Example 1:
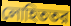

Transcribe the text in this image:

লোহিততর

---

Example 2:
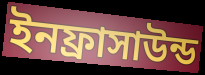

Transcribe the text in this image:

ইনফ্রাসাউন্ড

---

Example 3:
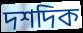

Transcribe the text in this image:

দশদিক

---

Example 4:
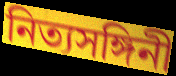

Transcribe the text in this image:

নিত্যসঙ্গিনী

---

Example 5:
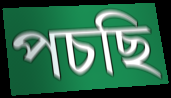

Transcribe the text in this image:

পচছি